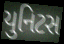
યુનિટસ